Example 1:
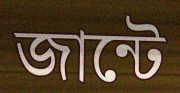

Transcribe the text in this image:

জান্টে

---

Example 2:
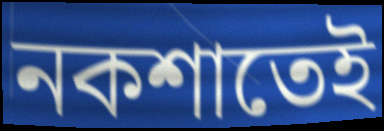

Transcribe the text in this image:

নকশাতেই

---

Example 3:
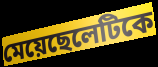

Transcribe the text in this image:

মেয়েছেলেটিকে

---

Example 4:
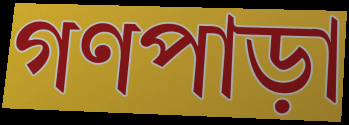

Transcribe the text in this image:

গণপাড়া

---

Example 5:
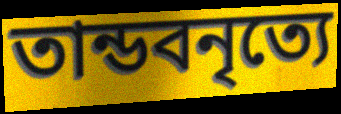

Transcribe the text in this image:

তান্ডবনৃত্যে